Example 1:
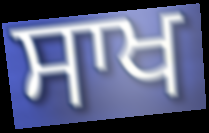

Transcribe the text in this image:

ਸਾਖ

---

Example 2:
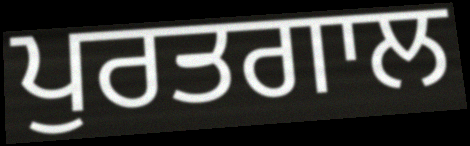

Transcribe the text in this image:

ਪੁਰਤਗਾਲ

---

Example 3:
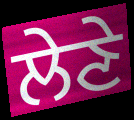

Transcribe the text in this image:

ਲੇਣੇ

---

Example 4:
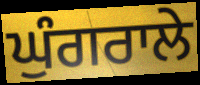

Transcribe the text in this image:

ਘੁੰਗਰਾਲੇ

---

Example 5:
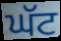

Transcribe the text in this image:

ਘੱਟ